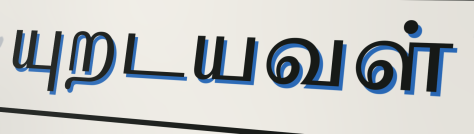
யுறடயவள்